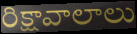
రిక్షావాలాలు